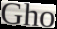
Gho